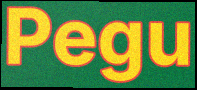
Pegu